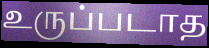
உருப்படாத